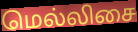
மெல்லிசை